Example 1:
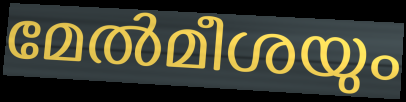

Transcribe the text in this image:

മേൽമീശയും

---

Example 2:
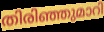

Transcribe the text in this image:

തിരിഞ്ഞുമാറി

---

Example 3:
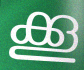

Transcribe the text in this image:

ക്കൂ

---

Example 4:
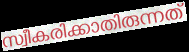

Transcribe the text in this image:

സ്വീകരിക്കാതിരുന്നത്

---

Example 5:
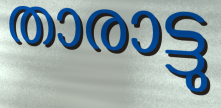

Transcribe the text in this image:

താരാട്ടു